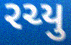
રચ્યુ